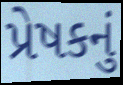
પ્રેષકનું